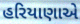
હરિયાણાએ